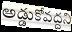
అడ్డుకోవద్దని